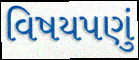
વિષયપણું